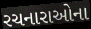
રચનારાઓના